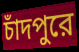
চাঁদপুরে